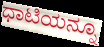
ಧಾಟಿಯನ್ನೂ